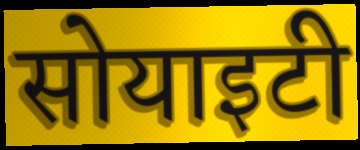
सोयाइटी